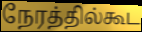
நேரத்தில்கூட